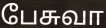
பேசுவா